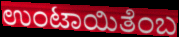
ಉಂಟಾಯಿತೆಂಬ